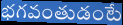
భగవంతుడంటే